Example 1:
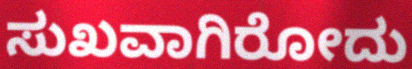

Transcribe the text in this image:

ಸುಖವಾಗಿರೋದು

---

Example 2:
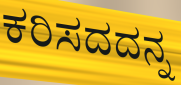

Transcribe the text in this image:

ಕರಿಸದದನ್ನ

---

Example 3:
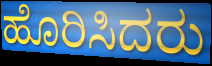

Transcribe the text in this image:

ಹೊರಿಸಿದರು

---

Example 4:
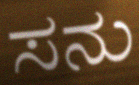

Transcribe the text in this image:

ಸನು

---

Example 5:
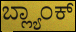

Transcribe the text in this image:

ಬ್ಲ್ಯಾಂಕ್